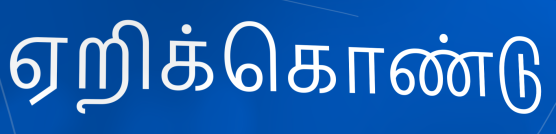
ஏறிக்கொண்டு